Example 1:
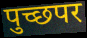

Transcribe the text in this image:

पुच्छपर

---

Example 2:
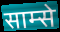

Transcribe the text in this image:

साम्से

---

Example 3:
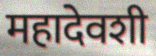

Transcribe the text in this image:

महादेवशी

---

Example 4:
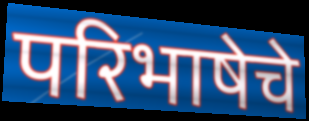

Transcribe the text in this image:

परिभाषेचे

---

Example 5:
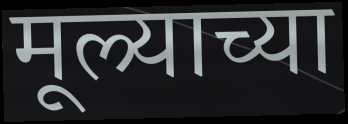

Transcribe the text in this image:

मूल्याच्या